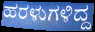
ಹರಳುಗಳಿದ್ದ